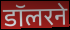
डॉलरने